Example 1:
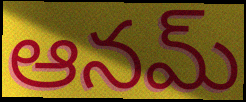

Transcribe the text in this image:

ఆనమ్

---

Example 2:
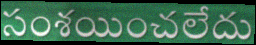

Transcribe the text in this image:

సంశయించలేదు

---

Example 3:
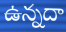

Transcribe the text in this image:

ఉన్నదా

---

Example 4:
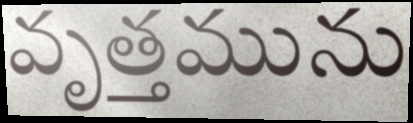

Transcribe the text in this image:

వృత్తమును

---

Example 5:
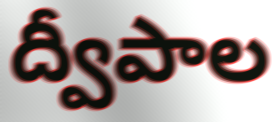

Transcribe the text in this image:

ద్వీపాల